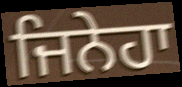
ਜਿਨੇਹਾ